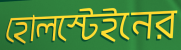
হোলস্টেইনের